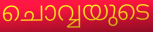
ചൊവ്വയുടെ